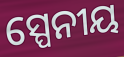
ସ୍ପେନୀୟ